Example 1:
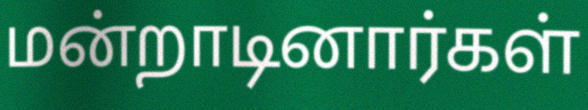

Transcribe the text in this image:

மன்றாடினார்கள்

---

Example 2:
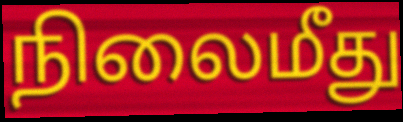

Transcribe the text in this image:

நிலைமீது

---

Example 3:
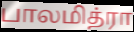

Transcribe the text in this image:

பாலமித்ரா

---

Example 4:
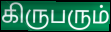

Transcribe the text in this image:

கிருபரும்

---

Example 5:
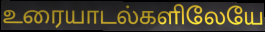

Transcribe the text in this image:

உரையாடல்களிலேயே